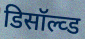
डिसॉल्व्ड